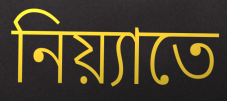
নিয়্যাতে